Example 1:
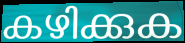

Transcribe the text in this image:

കഴിക്കുക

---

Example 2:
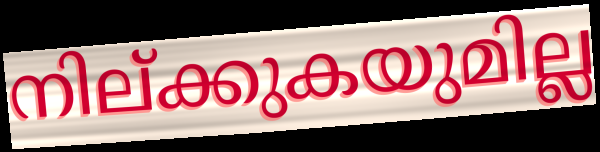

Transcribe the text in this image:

നില്ക്കുകയുമില്ല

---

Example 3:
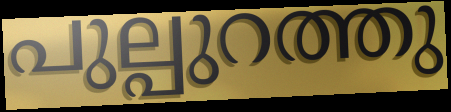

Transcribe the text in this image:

പുല്പുറത്തു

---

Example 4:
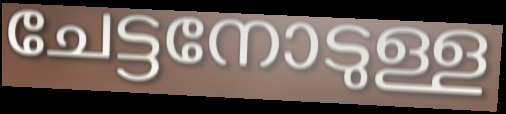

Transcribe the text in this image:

ചേട്ടനോടുള്ള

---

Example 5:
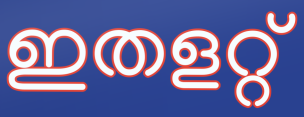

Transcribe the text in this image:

ഇതളറ്റ്